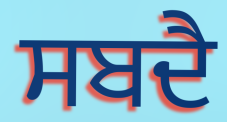
ਸਬਦੈ